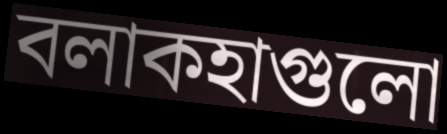
বলাকহাগুলো